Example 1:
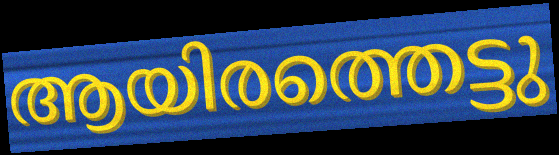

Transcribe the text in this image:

ആയിരത്തെട്ടു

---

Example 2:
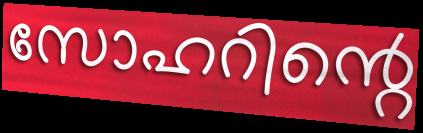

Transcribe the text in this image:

സോഹറിന്റെ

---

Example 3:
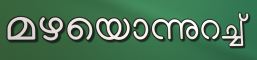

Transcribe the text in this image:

മഴയൊന്നുറച്ച്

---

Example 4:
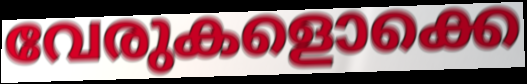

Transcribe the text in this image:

വേരുകളൊക്കെ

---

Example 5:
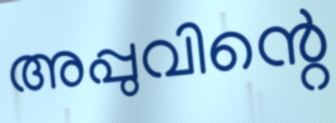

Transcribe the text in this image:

അപ്പുവിന്റെ